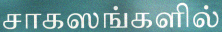
சாகஸங்களில்